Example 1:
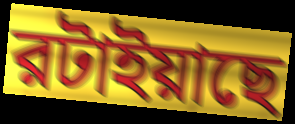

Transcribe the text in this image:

রটাইয়াছে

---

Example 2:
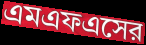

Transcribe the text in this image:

এমএফএসের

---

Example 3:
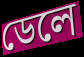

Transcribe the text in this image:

ডেলে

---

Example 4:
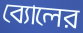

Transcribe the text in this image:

ব্যোলের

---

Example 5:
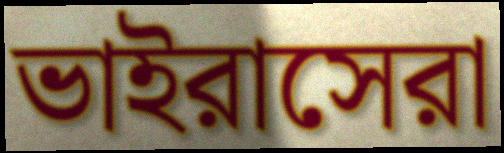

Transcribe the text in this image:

ভাইরাসেরা